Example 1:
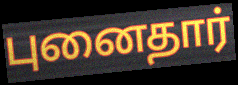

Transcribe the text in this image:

புனைதார்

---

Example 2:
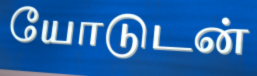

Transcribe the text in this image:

யோடுடன்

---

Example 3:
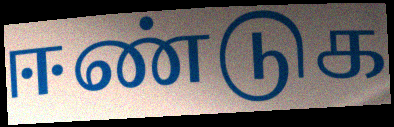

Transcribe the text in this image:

ஈண்டுக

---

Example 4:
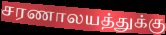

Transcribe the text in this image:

சரணாலயத்துக்கு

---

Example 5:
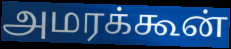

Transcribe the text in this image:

அமரக்கூன்